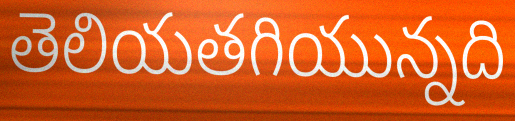
తెలియతగియున్నది